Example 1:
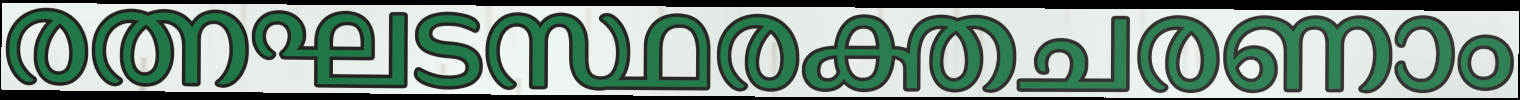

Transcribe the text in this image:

രത്നഘടസ്ഥരക്തചരണാം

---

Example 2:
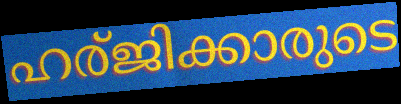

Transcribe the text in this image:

ഹര്ജിക്കാരുടെ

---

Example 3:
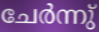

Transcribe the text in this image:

ചേർന്നു്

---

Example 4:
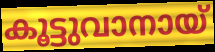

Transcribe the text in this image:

കൂട്ടുവാനായ്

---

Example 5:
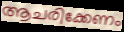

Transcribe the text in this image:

ആചരിക്കേണം